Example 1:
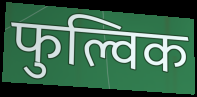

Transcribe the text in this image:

फुल्विक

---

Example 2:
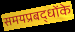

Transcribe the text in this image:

समयप्रबद्धोंके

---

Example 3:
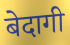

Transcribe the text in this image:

बेदागी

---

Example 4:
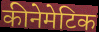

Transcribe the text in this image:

कीनेमेटिक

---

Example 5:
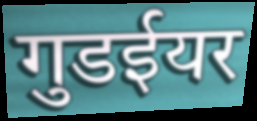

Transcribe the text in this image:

गुडईयर